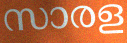
സാരള